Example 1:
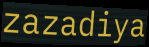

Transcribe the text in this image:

zazadiya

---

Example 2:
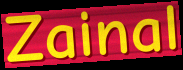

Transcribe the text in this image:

Zainal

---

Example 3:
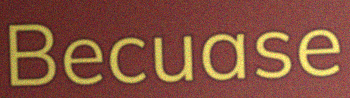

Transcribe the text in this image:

Becuase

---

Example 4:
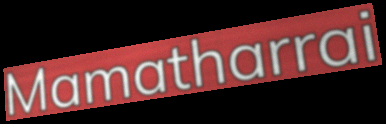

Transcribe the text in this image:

Mamatharrai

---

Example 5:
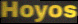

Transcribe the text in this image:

Hoyos